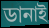
ডানাই